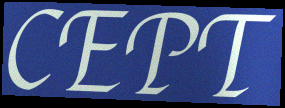
CEPT